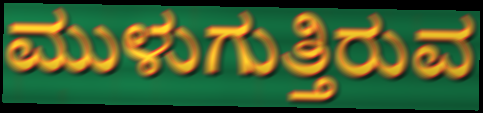
ಮುಳುಗುತ್ತಿರುವ